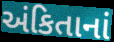
અંકિતાનાં